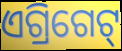
ଏଗ୍ରିଗେଟ୍